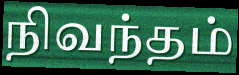
நிவந்தம்